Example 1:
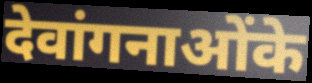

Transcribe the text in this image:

देवांगनाओंके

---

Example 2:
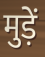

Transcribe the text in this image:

मुड़ें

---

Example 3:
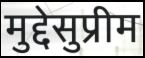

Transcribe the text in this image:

मुद्देसुप्रीम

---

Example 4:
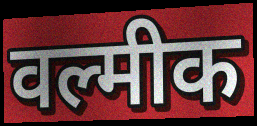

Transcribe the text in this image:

वल्मीक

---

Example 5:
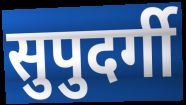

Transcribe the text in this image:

सुपुदर्गी